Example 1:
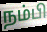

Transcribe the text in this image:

நம்பி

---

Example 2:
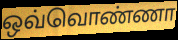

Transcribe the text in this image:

ஒவ்வொண்ணா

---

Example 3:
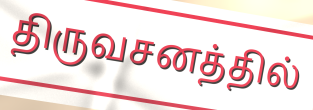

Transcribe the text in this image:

திருவசனத்தில்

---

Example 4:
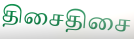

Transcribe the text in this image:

திசைதிசை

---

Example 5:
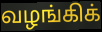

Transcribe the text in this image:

வழங்கிக்